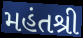
મહંતશ્રી